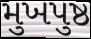
મુખપુષ્ઠ